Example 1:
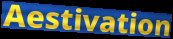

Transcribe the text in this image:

Aestivation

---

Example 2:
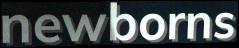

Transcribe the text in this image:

newborns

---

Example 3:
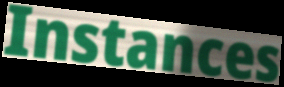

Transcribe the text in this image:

Instances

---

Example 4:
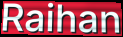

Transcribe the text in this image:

Raihan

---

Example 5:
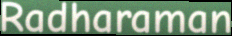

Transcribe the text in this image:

Radharaman